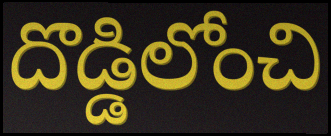
దొడ్డిలోంచి